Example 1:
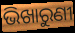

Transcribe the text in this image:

ଭିଖାରୁଣୀ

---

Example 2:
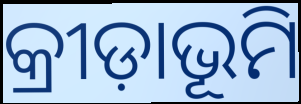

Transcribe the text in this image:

କ୍ରୀଡ଼ାଭୂମି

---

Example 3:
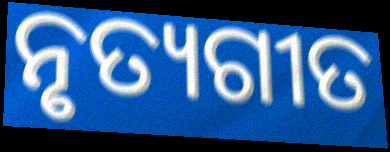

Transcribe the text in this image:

ନୃତ୍ୟଗୀତ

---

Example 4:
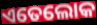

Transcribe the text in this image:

ଏତେଲୋକ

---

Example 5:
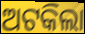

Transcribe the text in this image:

ଅଟକିଲା